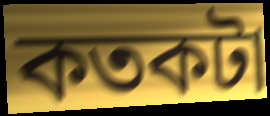
কতকটা